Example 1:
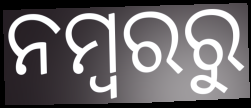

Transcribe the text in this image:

ନମ୍ବରରୁ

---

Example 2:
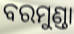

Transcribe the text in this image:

ବରମୁଣ୍ଡା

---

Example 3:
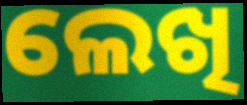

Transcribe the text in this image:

ଲେଖି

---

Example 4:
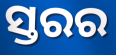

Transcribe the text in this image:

ସ୍ତରର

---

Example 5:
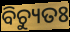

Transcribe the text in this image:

ବିଚ୍ୟୁତଃ